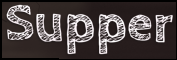
Supper